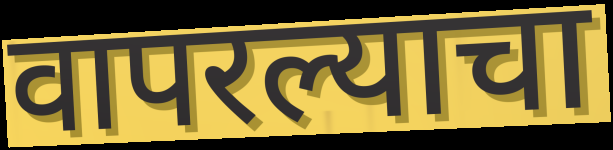
वापरल्याचा